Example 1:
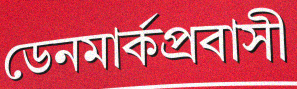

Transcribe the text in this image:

ডেনমার্কপ্রবাসী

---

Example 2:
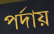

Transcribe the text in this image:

পর্দায়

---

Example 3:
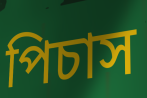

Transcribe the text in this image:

পিচাস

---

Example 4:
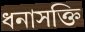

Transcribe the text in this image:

ধনাসক্তি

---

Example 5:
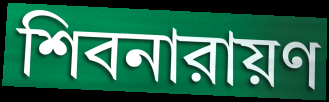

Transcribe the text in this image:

শিবনারায়ণ